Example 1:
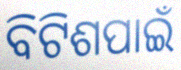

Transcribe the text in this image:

ବିଟିଶପାଇଁ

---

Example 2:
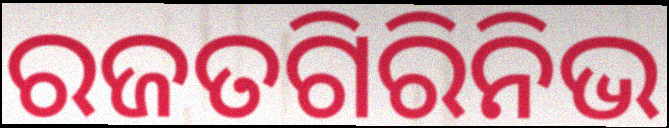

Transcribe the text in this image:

ରଜତଗିରିନିଭ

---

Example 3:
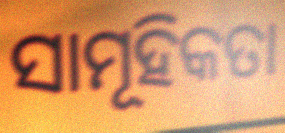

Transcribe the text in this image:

ସାମୂହିକତା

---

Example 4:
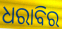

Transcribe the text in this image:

ଧରାବିର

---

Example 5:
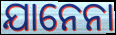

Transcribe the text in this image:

ଯାନେନା